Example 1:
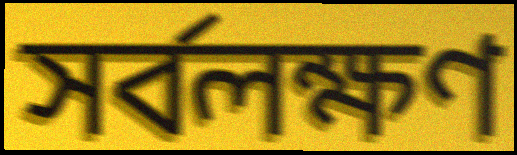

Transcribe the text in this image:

সর্বলক্ষণ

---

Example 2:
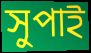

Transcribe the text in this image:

সুপাই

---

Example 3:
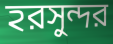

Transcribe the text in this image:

হরসুন্দর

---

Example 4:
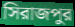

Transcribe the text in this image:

সিরাজপুর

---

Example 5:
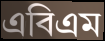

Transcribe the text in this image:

এবিএম